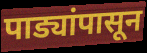
पाड्यांपासून